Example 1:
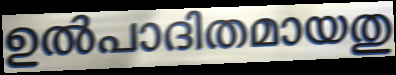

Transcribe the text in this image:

ഉൽപാദിതമായതു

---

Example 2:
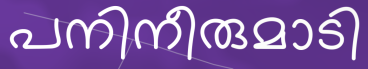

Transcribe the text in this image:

പനിനീരുമാടി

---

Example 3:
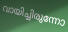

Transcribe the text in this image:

വായിച്ചിരുന്നോ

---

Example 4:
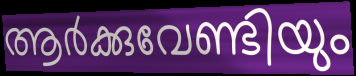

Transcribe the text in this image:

ആർക്കുവേണ്ടിയും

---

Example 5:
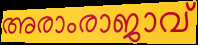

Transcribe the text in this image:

അരാംരാജാവ്